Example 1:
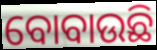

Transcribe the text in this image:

ବୋବାଉଛି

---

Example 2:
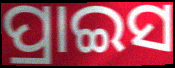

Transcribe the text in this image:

ପ୍ରାଇସ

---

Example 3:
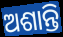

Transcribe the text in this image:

ଅଶାନ୍ତି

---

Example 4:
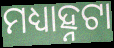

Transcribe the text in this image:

ମଧ୍ୟାହ୍ନଟା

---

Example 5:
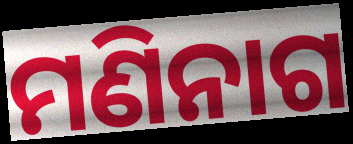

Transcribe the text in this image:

ମଣିନାଗ